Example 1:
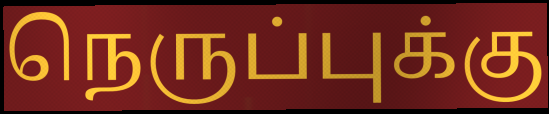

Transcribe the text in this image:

நெருப்புக்கு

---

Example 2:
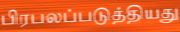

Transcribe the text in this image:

பிரபலப்படுத்தியது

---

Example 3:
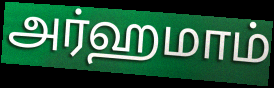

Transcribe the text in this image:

அர்ஹமாம்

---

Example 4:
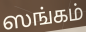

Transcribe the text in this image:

ஸங்கம்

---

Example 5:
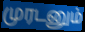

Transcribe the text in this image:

முரடனும்